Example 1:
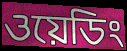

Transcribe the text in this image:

ওয়েডিং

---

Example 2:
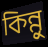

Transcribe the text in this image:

কিন্নু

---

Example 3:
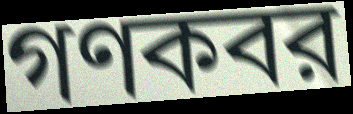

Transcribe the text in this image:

গণকবর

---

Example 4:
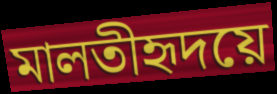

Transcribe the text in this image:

মালতীহৃদয়ে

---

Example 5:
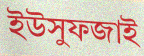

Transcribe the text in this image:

ইউসুফজাই